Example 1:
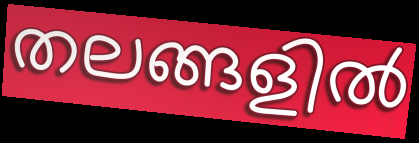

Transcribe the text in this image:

തലങ്ങളിൽ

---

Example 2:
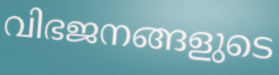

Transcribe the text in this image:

വിഭജനങ്ങളുടെ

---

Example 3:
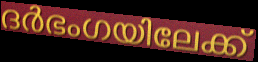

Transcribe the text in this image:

ദർഭംഗയിലേക്ക്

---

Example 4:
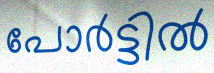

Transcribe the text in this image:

പോർട്ടിൽ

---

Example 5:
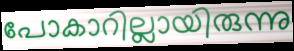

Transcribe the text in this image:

പോകാറില്ലായിരുന്നു